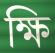
ক্ষি